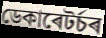
ডেকাৰেটৰ্চৰ